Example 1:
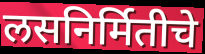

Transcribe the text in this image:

लसनिर्मितीचे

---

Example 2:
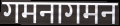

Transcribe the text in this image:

गमनागमन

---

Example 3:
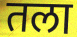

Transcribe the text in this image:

तला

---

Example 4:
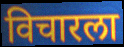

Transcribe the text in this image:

विचारला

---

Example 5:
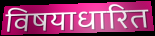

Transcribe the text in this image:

विषयाधारित